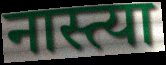
नास्त्या